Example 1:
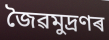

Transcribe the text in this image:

জৈৱমুদ্ৰণৰ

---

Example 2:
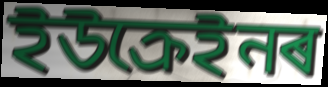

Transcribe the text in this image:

ইউক্ৰেইনৰ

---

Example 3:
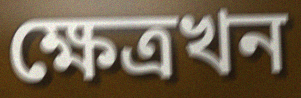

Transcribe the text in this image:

ক্ষেত্ৰখন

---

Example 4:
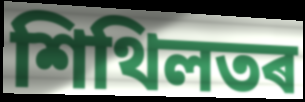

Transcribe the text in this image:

শিথিলতৰ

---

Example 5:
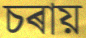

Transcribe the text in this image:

চৰায়